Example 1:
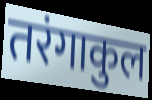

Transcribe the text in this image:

तरंगाकुल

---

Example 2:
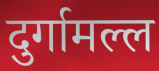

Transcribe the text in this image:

दुर्गामल्ल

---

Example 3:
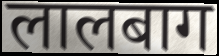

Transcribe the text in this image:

लालबाग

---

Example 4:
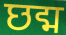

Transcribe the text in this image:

छद्म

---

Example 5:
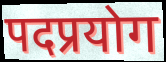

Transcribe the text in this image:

पदप्रयोग